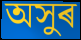
অসুৰ